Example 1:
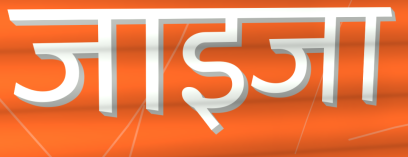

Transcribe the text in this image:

जाइजा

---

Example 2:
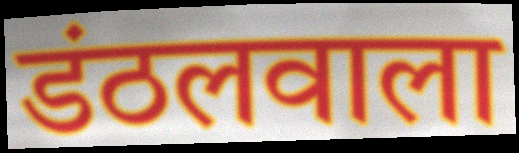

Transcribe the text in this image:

डंठलवाला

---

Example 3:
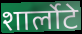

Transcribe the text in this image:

शार्लोटे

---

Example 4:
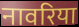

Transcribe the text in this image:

नावरिया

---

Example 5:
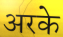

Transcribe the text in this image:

अरके